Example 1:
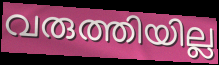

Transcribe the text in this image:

വരുത്തിയില്ല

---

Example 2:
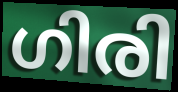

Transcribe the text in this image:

ഗിരി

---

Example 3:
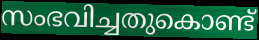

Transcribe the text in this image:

സംഭവിച്ചതുകൊണ്ട്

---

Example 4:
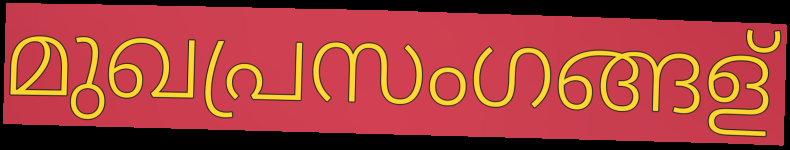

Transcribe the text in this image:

മുഖപ്രസംഗങ്ങള്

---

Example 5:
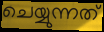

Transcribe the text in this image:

ചെയ്യുന്നത്